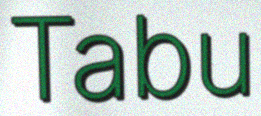
Tabu